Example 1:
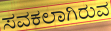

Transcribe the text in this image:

ಸವಕಲಾಗಿರುವ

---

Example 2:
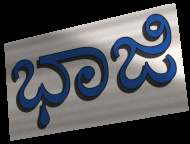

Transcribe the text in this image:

ಭಾಜಿ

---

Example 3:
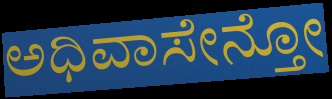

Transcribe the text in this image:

ಅಧಿವಾಸೇನ್ತೋ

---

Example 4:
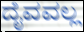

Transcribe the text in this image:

ದೈವವಲ್ಲ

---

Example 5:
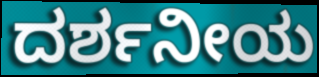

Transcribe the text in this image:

ದರ್ಶನೀಯ